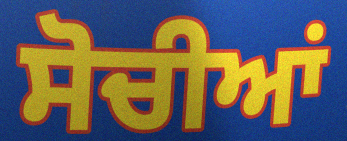
ਸੋਚੀਆਂ